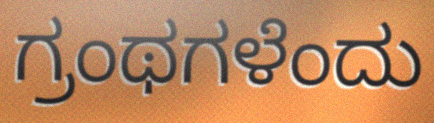
ಗ್ರಂಥಗಳೆಂದು